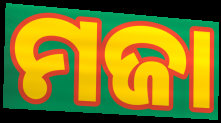
ମଜା